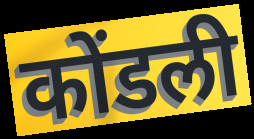
कोंडली